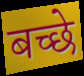
बच्छे